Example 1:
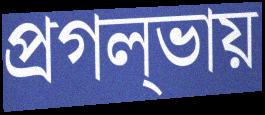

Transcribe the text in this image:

প্রগল্‌ভায়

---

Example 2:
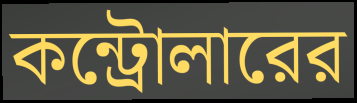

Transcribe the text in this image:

কন্ট্রোলারের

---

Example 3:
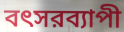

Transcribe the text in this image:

বৎসরব্যাপী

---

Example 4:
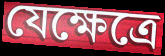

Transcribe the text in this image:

যেক্ষেত্রে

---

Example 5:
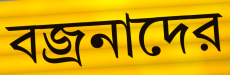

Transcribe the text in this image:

বজ্রনাদের